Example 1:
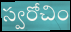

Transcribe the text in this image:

స్వరోచిం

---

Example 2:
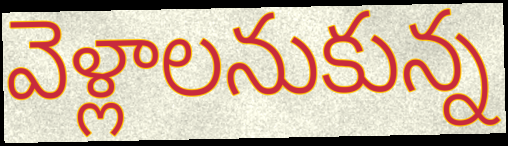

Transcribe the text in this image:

వెళ్లాలనుకున్న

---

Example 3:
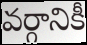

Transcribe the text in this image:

వర్గానికీ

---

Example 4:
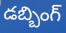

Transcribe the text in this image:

డబ్బింగ్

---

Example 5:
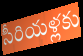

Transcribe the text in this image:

సీరియళ్లకు